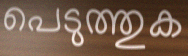
പെടുത്തുക